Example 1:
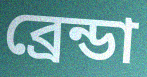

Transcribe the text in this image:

ব্রেন্ডা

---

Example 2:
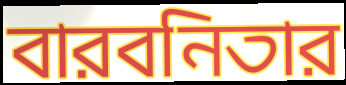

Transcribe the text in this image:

বারবনিতার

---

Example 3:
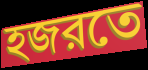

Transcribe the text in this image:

হজরতে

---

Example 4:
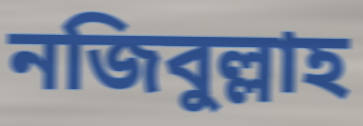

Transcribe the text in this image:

নজিবুল্লাহ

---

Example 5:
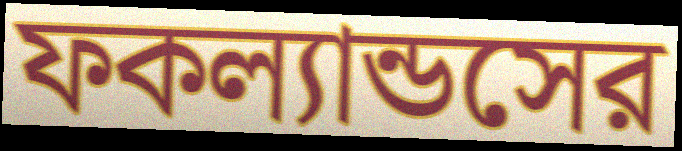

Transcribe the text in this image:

ফকল্যান্ডসের